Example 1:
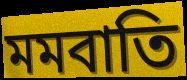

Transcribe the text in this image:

মমবাতি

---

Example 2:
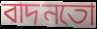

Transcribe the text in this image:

বাদনতো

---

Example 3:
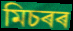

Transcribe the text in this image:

মিচৰৰ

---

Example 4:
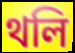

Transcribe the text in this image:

থলি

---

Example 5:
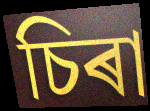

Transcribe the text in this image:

চিৰা